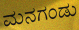
ಮನಗಂಡು